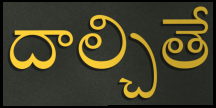
దాల్చితే